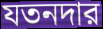
যতনদার